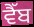
ਵੈੱਬ